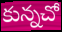
కున్నచో